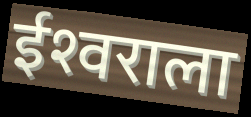
ईश्वराला